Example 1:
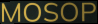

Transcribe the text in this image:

MOSOP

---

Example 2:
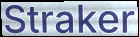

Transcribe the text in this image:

Straker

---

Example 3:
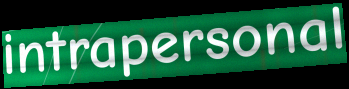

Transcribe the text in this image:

intrapersonal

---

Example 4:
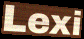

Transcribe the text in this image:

Lexi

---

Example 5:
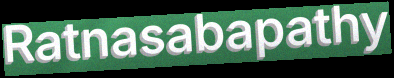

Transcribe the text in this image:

Ratnasabapathy